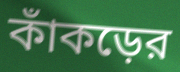
কাঁকড়ের